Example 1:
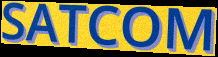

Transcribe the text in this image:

SATCOM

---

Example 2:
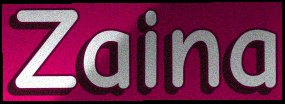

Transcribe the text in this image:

Zaina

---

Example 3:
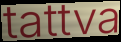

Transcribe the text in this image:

tattva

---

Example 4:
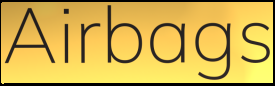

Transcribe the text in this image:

Airbags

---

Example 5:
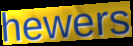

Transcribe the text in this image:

hewers